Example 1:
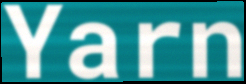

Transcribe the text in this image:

Yarn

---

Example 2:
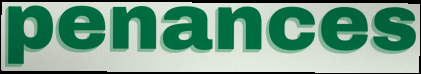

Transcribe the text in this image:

penances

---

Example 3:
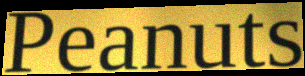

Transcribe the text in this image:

Peanuts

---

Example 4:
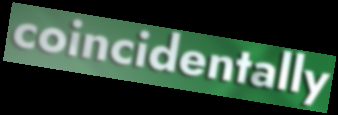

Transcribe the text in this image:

coincidentally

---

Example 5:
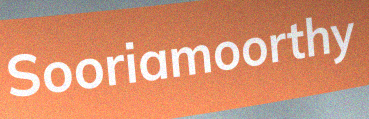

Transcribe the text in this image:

Sooriamoorthy